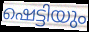
ഷെട്ടിയും